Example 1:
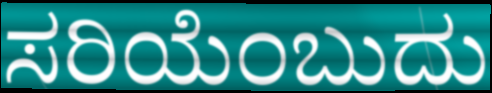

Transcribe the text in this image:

ಸರಿಯೆಂಬುದು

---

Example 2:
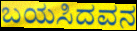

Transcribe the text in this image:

ಬಯಸಿದವನ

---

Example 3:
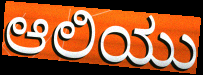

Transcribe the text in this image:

ಆಲಿಯು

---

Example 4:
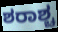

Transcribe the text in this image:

ಶರಾಶ್ಚ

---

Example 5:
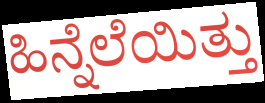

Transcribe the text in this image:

ಹಿನ್ನೆಲೆಯಿತ್ತು